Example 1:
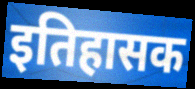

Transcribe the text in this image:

इतिहासक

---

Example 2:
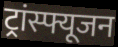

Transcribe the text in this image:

ट्रांस्फ्यूजन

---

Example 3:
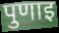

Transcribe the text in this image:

पुणाइ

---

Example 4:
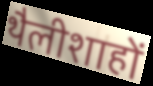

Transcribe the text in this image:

थैलीशाहों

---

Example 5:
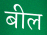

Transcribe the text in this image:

बील